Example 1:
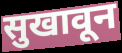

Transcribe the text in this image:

सुखावून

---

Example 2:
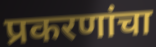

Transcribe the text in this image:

प्रकरणांचा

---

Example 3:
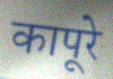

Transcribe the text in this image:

कापूरे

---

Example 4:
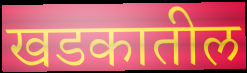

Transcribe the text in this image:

खडकातील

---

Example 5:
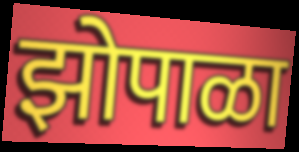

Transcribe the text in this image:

झोपाळा